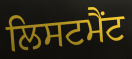
ਲਿਸਟਮੈਂਟ